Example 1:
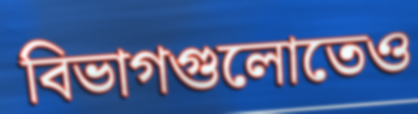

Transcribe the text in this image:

বিভাগগুলোতেও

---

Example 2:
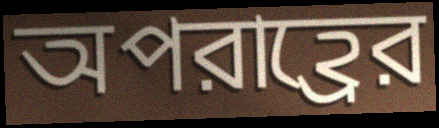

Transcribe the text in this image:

অপরাহ্রের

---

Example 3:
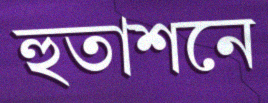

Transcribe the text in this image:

হুতাশনে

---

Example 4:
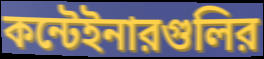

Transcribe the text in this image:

কন্টেইনারগুলির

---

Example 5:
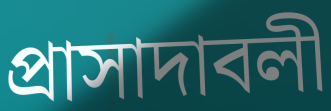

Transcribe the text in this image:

প্রাসাদাবলী